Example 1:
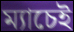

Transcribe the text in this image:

ম্যাচেই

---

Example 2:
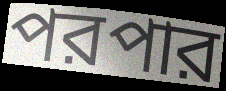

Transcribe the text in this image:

পরপার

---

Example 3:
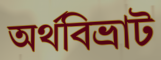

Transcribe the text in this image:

অর্থবিভ্রাট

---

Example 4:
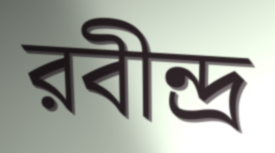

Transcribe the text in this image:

রবীন্দ্র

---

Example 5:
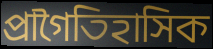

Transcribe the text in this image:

প্রাগৈতিহাসিক